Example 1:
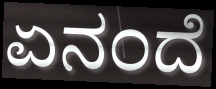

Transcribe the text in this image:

ಏನಂದೆ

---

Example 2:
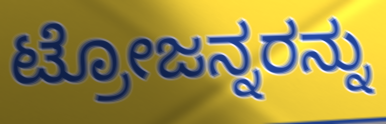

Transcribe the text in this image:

ಟ್ರೋಜನ್ನರನ್ನು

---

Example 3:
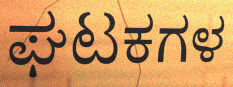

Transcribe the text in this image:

ಘಟಕಗಳ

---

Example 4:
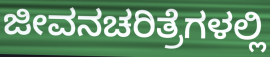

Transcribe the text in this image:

ಜೀವನಚರಿತ್ರೆಗಳಲ್ಲಿ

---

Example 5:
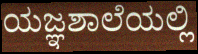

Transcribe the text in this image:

ಯಜ್ಞಶಾಲೆಯಲ್ಲಿ